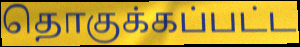
தொகுக்கப்பட்ட